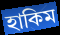
হাকিম